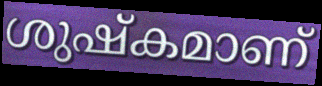
ശുഷ്കമാണ്